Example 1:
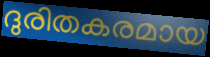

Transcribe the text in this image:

ദുരിതകരമായ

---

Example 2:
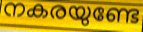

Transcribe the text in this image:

നകരയുണ്ടേ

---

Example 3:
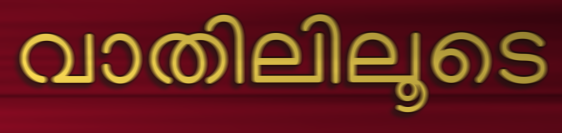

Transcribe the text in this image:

വാതിലിലൂടെ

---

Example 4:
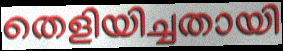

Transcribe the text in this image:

തെളിയിച്ചതായി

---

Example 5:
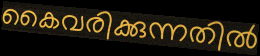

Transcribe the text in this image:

കൈവരിക്കുന്നതിൽ